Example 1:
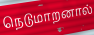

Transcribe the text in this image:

நெடுமாறனால்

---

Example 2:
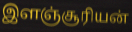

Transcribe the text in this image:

இளஞ்சூரியன்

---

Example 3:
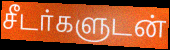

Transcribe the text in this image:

சீடர்களுடன்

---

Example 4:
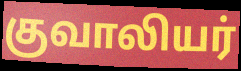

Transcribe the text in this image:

குவாலியர்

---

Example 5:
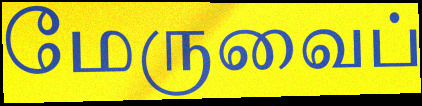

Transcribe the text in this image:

மேருவைப்